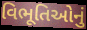
વિભૂતિઓનું